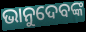
ଭାନୁଦେବଙ୍କ